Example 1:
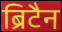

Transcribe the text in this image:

ब्रिटैन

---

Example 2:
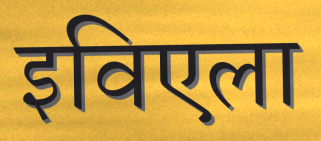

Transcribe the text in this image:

इविएला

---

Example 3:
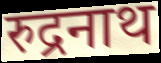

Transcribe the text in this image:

रुद्रनाथ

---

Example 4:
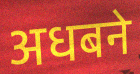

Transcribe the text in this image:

अधबने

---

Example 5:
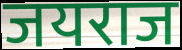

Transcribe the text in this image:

जयराज